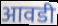
आवडी